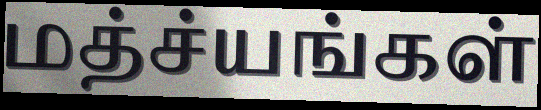
மத்ச்யங்கள்